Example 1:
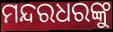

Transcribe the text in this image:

ମନ୍ଦରଧରଙ୍କୁ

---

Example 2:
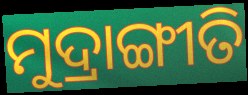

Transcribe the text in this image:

ମୁଦ୍ରାଙ୍ଗୀତି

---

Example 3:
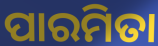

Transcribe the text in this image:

ପାରମିତା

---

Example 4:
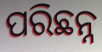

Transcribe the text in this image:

ପରିଛନ୍ନ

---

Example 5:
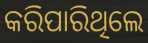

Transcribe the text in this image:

କରିପାରିଥିଲେ